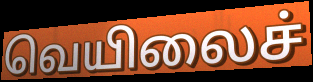
வெயிலைச்